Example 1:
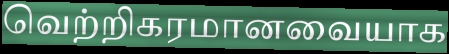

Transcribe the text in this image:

வெற்றிகரமானவையாக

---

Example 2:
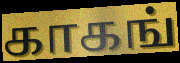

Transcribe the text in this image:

காகங்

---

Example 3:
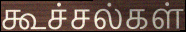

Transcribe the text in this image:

கூச்சல்கள்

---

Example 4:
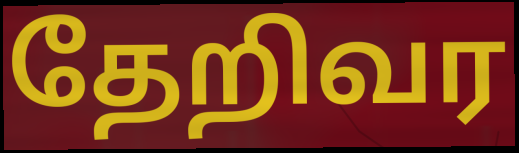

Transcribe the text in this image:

தேறிவர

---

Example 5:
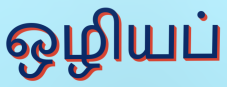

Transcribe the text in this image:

ஒழியப்